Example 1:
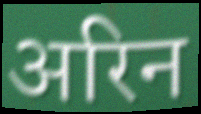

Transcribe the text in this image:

अरिन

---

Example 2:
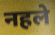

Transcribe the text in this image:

नहले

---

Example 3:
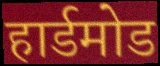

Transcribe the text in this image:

हार्डमोड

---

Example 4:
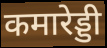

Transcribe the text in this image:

कमारेड्डी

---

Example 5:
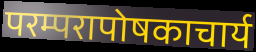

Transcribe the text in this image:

परम्परापोषकाचार्य